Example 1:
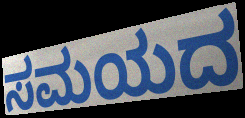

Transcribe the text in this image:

ಸಮಯದ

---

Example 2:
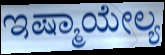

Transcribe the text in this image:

ಇಷ್ಮಾಯೇಲ್ಯ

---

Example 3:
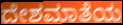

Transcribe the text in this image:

ದೇಶಮಾತೆಯ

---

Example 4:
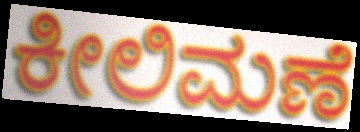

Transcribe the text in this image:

ಕೀಲಿಮಣೆ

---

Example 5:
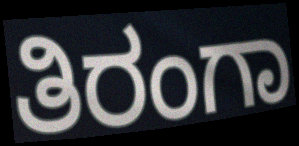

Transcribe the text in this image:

ತಿರಂಗಾ